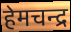
हेमचन्द्र